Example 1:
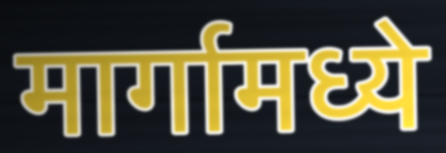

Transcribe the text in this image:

मार्गामध्ये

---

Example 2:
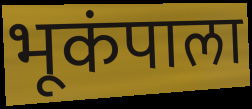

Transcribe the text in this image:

भूकंपाला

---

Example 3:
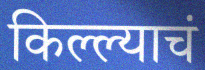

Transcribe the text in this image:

किल्ल्याचं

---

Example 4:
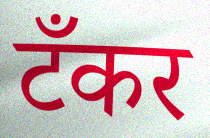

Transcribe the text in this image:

टँकर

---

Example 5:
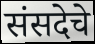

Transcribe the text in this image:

संसदेचे